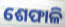
ଶେଫାଳି